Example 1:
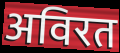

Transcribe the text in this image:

अविरत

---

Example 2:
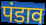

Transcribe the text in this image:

पंडाव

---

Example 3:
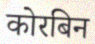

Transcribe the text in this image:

कोरबिन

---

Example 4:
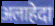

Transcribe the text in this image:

अलाहेदा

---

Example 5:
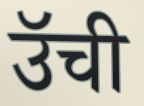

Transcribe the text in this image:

उॅची